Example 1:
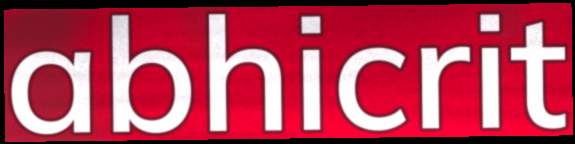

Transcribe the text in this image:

abhicrit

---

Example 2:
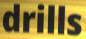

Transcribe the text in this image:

drills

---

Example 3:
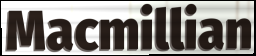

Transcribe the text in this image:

Macmillian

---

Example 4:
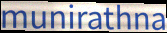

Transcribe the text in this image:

munirathna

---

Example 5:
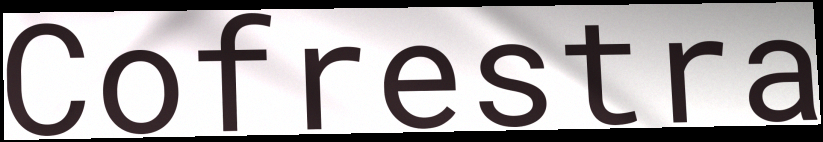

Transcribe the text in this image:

Cofrestra